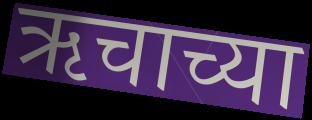
ऋचाच्या